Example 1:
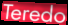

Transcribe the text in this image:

Teredo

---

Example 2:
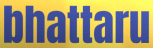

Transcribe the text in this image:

bhattaru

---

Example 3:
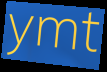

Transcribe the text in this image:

ymt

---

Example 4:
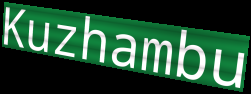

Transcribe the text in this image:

Kuzhambu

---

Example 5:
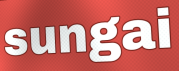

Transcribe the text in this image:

sungai